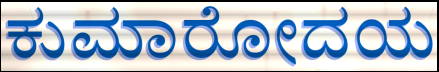
ಕುಮಾರೋದಯ